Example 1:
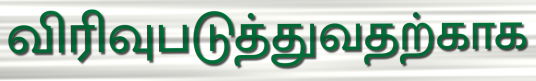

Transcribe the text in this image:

விரிவுபடுத்துவதற்காக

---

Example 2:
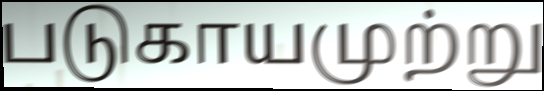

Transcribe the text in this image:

படுகாயமுற்று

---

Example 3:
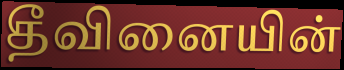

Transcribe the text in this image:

தீவினையின்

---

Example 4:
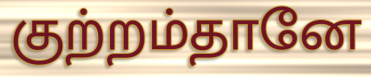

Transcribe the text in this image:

குற்றம்தானே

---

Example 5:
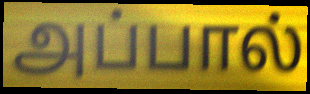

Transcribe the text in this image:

அப்பால்